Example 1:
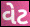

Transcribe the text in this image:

વેટ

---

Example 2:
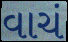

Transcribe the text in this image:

વાચં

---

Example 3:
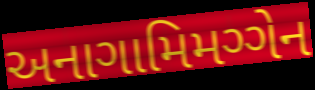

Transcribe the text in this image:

અનાગામિમગ્ગેન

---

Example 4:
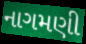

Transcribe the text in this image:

નાગમણી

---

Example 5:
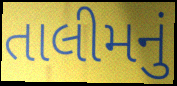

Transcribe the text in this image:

તાલીમનું